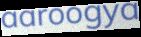
aaroogya